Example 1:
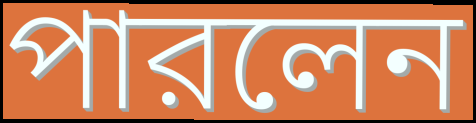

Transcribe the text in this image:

পারলেন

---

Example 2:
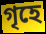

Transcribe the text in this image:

গৃহে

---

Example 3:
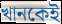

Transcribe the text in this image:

খানকেই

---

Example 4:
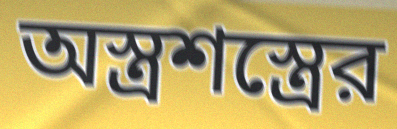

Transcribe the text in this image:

অস্ত্রশস্ত্রের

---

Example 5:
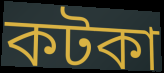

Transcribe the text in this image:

কটকা